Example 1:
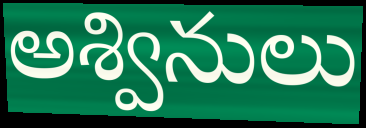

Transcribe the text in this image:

అశ్వినులు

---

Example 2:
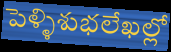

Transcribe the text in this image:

పెళ్ళిశుభలేఖల్లో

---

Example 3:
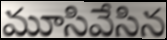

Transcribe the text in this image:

మూసివేసిన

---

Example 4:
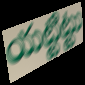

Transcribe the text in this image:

యట్టిట్టు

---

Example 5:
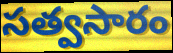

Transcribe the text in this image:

సత్వసారం